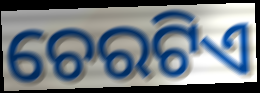
ଚେରଟିଏ